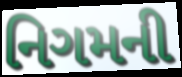
નિગમની